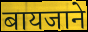
बायजाने